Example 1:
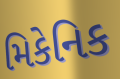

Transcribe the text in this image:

મિકેનિક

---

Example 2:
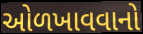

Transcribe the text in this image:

ઓળખાવવાનો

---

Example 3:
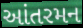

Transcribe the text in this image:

આંતરમન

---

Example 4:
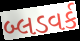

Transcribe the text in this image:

બ્લડવર્ક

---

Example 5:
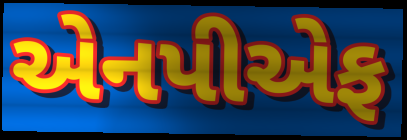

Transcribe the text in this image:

એનપીએફ